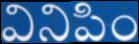
వినిపిం